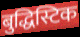
बुद्धिस्टिक